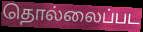
தொல்லைப்பட